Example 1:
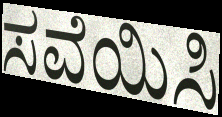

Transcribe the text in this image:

ಸವೆಯಿಸಿ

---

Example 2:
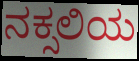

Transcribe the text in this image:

ನಕ್ಸಲಿಯ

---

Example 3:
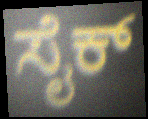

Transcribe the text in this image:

ಸೈಕ್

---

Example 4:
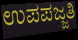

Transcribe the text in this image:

ಉಪಪಜ್ಜತಿ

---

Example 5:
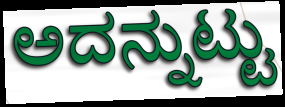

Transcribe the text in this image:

ಅದನ್ನುಟ್ಟು